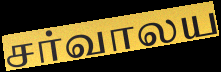
சர்வாலய